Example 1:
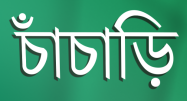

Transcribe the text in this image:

চাঁচাড়ি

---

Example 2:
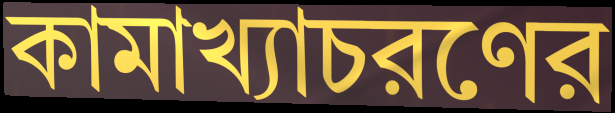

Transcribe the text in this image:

কামাখ্যাচরণের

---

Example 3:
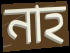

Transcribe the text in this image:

নাহ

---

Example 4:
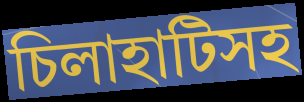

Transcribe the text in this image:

চিলাহাটিসহ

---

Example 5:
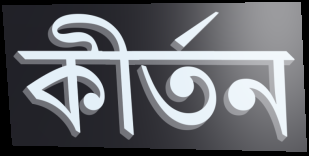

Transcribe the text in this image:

কীর্তন